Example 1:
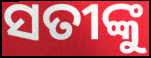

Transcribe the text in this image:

ସତୀଙ୍କୁ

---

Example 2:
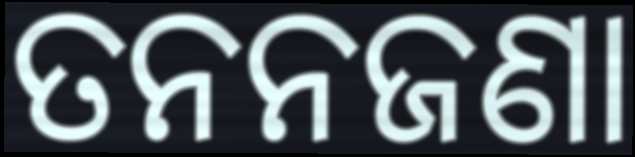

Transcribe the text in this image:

ତନନଜଣା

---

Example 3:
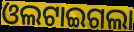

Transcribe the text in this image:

ଓଲଟାଇଗଲା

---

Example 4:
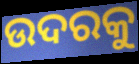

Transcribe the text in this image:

ଉଦରକୁ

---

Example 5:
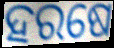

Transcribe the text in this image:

ହରଷେ